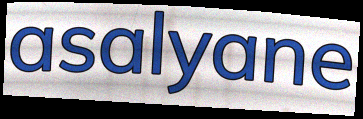
asalyane